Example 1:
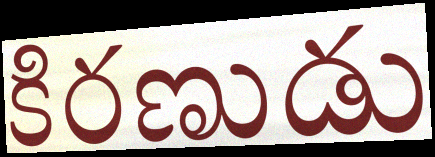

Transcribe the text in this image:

కిరణుడు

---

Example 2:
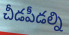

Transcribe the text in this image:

చీడపీడల్ని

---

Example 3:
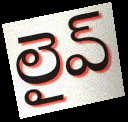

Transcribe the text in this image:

లైవ్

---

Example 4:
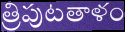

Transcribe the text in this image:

త్రిపుటతాళం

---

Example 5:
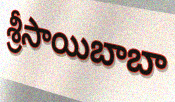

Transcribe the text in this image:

శ్రీసాయిబాబా